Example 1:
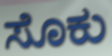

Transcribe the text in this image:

ಸೊಕು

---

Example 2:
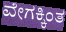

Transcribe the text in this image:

ವೇಗಕ್ಕಿಂತ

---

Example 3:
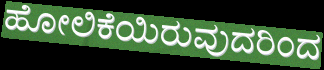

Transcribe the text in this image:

ಹೋಲಿಕೆಯಿರುವುದರಿಂದ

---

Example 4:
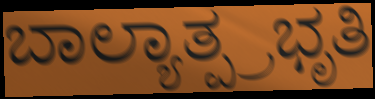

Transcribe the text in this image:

ಬಾಲ್ಯಾತ್ಪ್ರಭೃತಿ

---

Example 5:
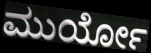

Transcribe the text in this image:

ಮುರ್ಯೋ